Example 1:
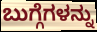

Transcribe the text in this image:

ಬುಗ್ಗೆಗಳನ್ನು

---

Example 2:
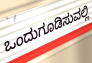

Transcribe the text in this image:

ಒಂದುಗೂಡಿಸುವಲ್ಲಿ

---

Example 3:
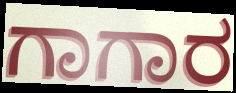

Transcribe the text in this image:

ಗಾಗಾರ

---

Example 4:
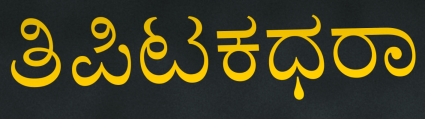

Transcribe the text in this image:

ತಿಪಿಟಕಧರಾ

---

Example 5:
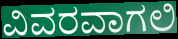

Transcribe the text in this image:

ವಿವರವಾಗಲಿ